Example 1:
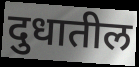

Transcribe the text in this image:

दुधातील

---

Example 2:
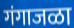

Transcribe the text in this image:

गंगाजळा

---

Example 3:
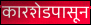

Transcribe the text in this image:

कारशेडपासून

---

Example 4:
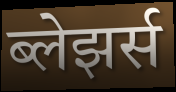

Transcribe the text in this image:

ब्लेझर्स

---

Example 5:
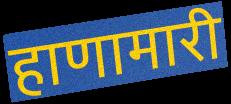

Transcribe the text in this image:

हाणामारी